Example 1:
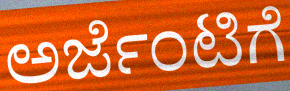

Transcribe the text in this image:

ಅರ್ಜೆಂಟಿಗೆ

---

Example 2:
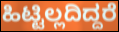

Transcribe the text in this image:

ಹಿಟ್ಟಿಲ್ಲದಿದ್ದರೆ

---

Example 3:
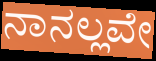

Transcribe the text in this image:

ನಾನಲ್ಲವೇ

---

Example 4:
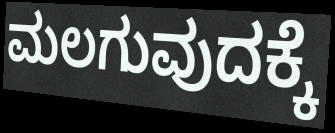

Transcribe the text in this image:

ಮಲಗುವುದಕ್ಕೆ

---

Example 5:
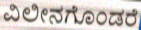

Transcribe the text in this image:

ವಿಲೀನಗೊಂಡರೆ